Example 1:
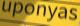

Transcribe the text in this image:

uponyas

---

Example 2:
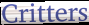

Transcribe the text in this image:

Critters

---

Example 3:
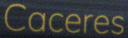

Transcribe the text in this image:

Caceres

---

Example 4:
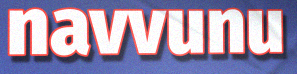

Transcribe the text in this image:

navvunu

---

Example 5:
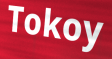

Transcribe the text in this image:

Tokoy